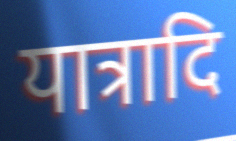
यात्रादि